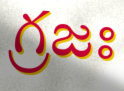
గ్రజః